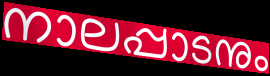
നാലപ്പാടനും